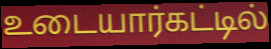
உடையார்கட்டில்